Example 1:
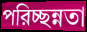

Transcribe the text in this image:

পরিচ্ছন্নতা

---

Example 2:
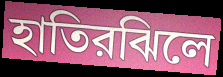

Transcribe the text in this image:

হাতিরঝিলে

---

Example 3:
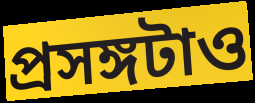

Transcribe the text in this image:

প্রসঙ্গটাও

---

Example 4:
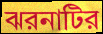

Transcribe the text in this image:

ঝরনাটির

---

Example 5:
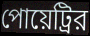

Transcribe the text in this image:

পোয়েট্রির